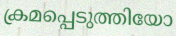
ക്രമപ്പെടുത്തിയോ